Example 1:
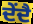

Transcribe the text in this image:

ਦੇਂਦੈ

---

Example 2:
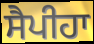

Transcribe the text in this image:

ਸੈਪੀਹਾ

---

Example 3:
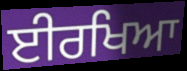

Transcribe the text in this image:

ਈਰਖਿਆ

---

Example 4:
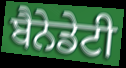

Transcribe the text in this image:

ਬੈਨੇਡੇਟੀ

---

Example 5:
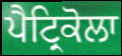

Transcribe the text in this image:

ਪੈਟ੍ਰਿਕੋਲਾ